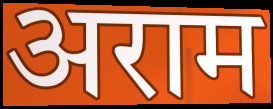
अराम